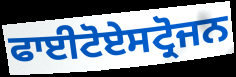
ਫਾਈਟੋਏਸਟ੍ਰੋਜਨ